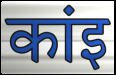
कांइ